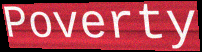
Poverty